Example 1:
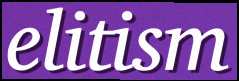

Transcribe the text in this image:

elitism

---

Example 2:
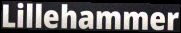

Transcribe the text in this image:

Lillehammer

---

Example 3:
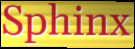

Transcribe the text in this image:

Sphinx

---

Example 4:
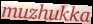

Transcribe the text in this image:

muzhukka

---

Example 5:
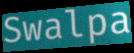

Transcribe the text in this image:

Swalpa